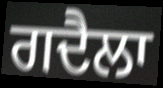
ਗਦੈਲਾ